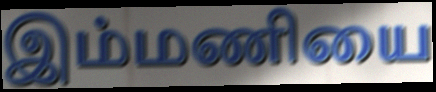
இம்மணியை